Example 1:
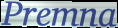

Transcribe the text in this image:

Premna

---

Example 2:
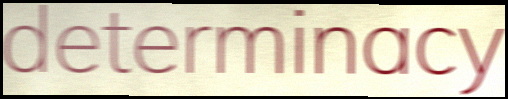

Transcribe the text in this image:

determinacy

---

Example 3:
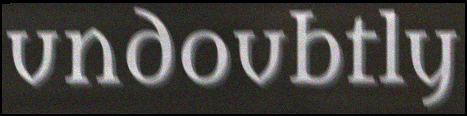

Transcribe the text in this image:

undoubtly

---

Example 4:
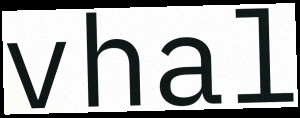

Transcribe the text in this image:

vhal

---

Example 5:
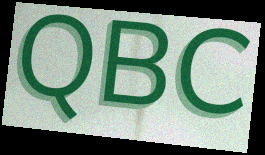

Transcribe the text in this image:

QBC